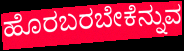
ಹೊರಬರಬೇಕೆನ್ನುವ